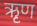
ऋृण